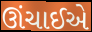
ઊંચાઈએ